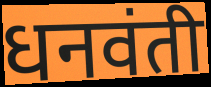
धनवंती